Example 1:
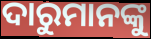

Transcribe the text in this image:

ଦାରୁମାନଙ୍କୁ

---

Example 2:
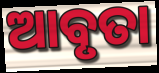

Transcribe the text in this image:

ଆବୃତା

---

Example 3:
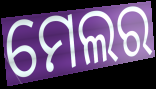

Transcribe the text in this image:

ମେଲର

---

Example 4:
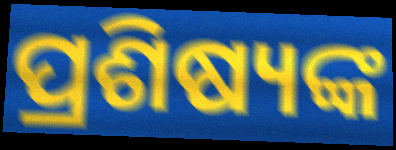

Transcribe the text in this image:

ପ୍ରଶିଷ୍ୟଙ୍କ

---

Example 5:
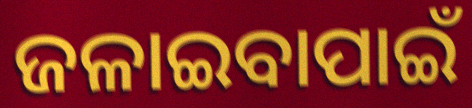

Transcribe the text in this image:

ଜଳାଇବାପାଇଁ